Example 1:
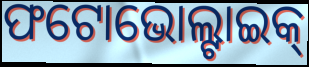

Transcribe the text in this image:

ଫଟୋଭୋଲ୍ଟାଇକ୍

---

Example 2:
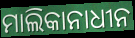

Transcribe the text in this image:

ମାଲିକାନାଧୀନ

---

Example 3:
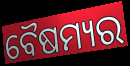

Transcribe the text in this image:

ବୈଷମ୍ଯର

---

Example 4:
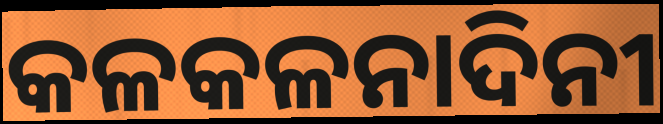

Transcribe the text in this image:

କଳକଳନାଦିନୀ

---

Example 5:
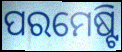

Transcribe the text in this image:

ପରମେଷ୍ଟି